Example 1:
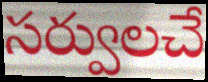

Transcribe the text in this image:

సర్వులచే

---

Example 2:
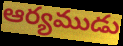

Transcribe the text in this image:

ఆర్యముడు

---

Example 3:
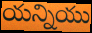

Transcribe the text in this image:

యన్నియు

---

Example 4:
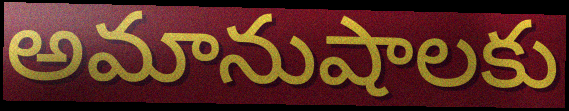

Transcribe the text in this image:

అమానుషాలకు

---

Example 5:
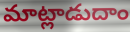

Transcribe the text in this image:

మాట్లాడుదాం